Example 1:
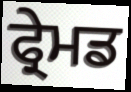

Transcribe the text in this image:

ਫ੍ਰੇਮਡ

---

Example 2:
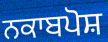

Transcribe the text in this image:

ਨਕਾਬਪੋਸ਼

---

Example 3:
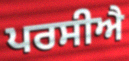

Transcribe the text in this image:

ਪਰਸੀਐ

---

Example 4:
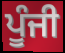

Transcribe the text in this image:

ਪੂੰਜੀ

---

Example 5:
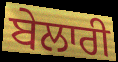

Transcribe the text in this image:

ਬੇਲਾਰੀ